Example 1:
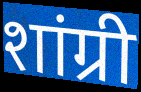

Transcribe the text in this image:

शांग्री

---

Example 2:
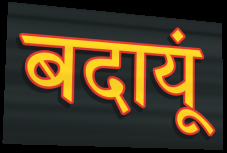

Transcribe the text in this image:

बदायूं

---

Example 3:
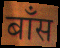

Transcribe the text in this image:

बाँस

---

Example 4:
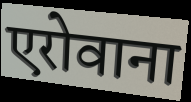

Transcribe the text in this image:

एरोवाना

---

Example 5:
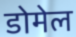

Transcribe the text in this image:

डोमेल